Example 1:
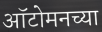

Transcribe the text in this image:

ऑटोमनच्या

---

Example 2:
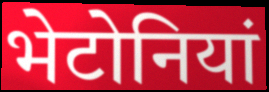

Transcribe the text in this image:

भेटोनियां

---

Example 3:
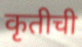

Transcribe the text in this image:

कृतीची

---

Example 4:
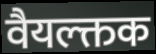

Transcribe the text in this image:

वैयल्क्तक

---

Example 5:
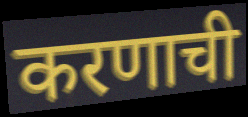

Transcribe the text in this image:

करणाची